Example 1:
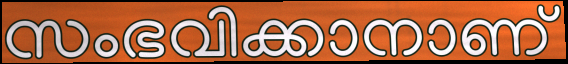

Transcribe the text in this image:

സംഭവിക്കാനാണ്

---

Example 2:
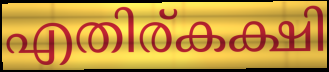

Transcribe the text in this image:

എതിര്കക്ഷി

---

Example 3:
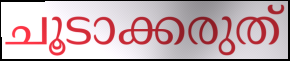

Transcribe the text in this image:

ചൂടാക്കരുത്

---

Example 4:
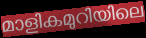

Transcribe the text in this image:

മാളികമുറിയിലെ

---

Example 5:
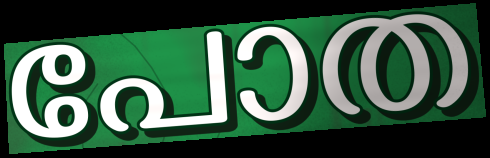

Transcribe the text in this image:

പോത